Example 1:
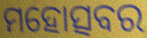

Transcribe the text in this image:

ମହୋତ୍ସବର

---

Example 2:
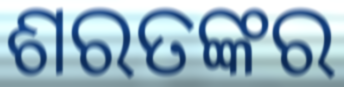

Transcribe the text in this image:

ଶରତଙ୍କର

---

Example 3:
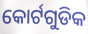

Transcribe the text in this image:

କୋର୍ଟଗୁଡିକ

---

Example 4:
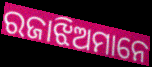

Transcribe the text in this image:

ରଜାଝିଅମାନେ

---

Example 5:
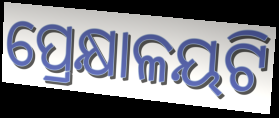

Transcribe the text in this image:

ପ୍ରେକ୍ଷାଳୟଟି